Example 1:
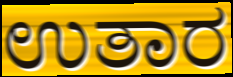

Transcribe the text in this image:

ಉತಾರ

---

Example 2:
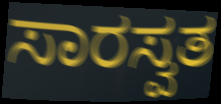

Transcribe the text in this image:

ಸಾರಸ್ವತ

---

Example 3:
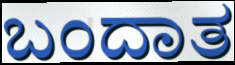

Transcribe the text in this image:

ಬಂದಾತ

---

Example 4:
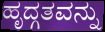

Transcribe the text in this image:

ಹೃದ್ಗತವನ್ನು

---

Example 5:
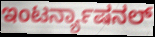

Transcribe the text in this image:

ಇಂಟರ್ನ್ಯಾಷನಲ್